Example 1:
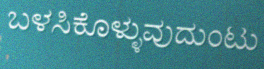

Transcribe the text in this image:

ಬಳಸಿಕೊಳ್ಳುವುದುಂಟು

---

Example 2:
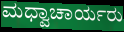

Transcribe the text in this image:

ಮಧ್ವಾಚಾರ್ಯರು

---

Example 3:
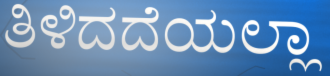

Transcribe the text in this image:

ತಿಳಿದದೆಯಲ್ಲಾ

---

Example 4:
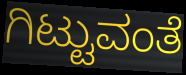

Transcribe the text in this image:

ಗಿಟ್ಟುವಂತೆ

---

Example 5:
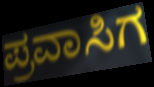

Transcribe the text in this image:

ಪ್ರವಾಸಿಗ